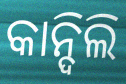
କାନ୍ଦିଲି